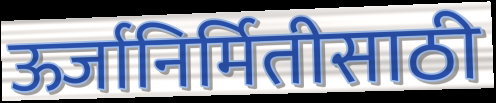
ऊर्जानिर्मितीसाठी